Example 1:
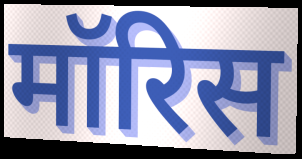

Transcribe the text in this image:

मॉरिस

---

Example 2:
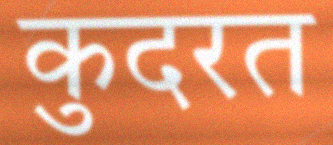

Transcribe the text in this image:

कुदरत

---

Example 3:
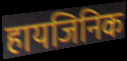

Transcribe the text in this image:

हायजिनिक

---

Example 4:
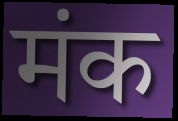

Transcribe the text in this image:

मंक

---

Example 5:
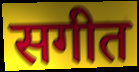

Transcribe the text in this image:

सगीत